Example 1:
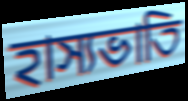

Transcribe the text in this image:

হাস্যভাতি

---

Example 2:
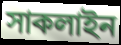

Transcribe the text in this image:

সাকলাইন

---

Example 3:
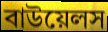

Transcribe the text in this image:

বাউয়েলস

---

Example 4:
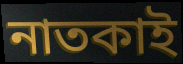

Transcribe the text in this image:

নাতকাই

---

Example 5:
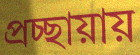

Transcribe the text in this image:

প্রচ্ছায়ায়